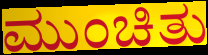
ಮುಂಚಿತು